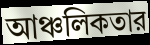
আঞ্চলিকতার